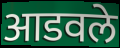
आडवले